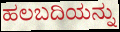
ಹಲಬದಿಯನ್ನು